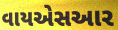
વાયએસઆર